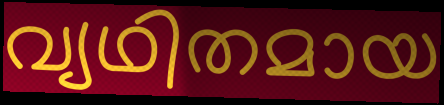
വ്യഥിതമായ